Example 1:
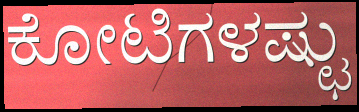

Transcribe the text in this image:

ಕೋಟಿಗಳಷ್ಟು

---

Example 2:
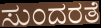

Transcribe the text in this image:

ಸುಂದರತೆ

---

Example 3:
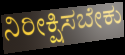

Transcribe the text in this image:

ನಿರೀಕ್ಷಿಸಬೇಕು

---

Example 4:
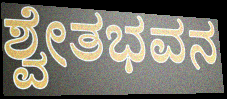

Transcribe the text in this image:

ಶ್ವೇತಭವನ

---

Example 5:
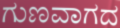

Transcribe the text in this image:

ಗುಣವಾಗದ